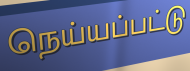
நெய்யப்பட்டு